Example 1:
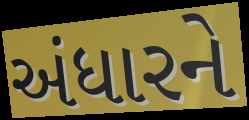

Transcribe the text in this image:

અંધારને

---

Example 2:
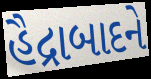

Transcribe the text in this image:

હૈદ્રાબાદને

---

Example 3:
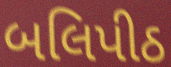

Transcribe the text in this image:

બલિપીઠ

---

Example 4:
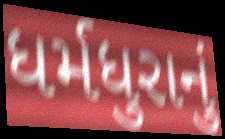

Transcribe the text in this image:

ધર્મધુરાનું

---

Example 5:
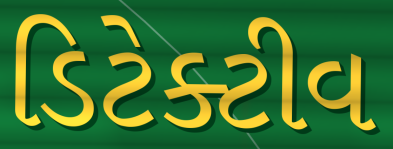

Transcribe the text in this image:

ડિટેક્ટીવ